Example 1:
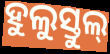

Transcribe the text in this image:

ହୁଲୁସ୍ତୁଲ୍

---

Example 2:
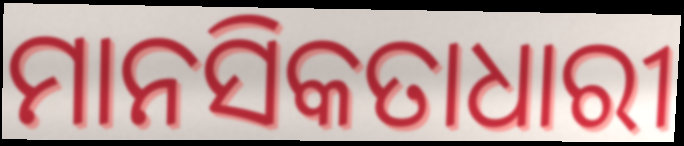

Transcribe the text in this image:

ମାନସିକତାଧାରୀ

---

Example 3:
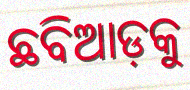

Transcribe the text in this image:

ଛବିଆଡ଼କୁ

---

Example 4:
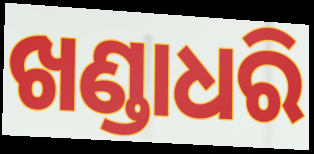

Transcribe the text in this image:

ଖଣ୍ଡାଧରି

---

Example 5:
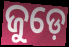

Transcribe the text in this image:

ଜୁଡ଼େ